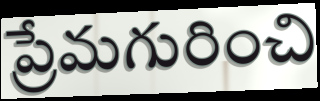
ప్రేమగురించి